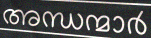
അന്ധന്മാർ